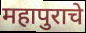
महापुराचे